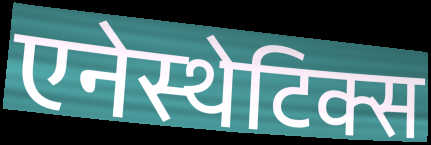
एनेस्थेटिक्स